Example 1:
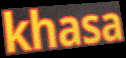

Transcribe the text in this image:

khasa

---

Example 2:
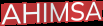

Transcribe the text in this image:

AHIMSA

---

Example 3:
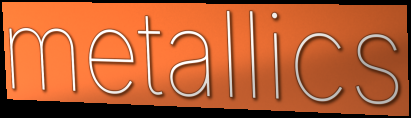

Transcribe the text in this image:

metallics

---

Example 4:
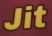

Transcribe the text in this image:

Jit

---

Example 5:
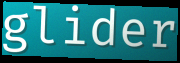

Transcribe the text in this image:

glider